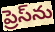
ప్రెస్‌ను